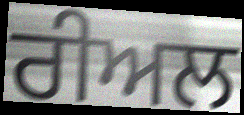
ਰੀਅਲ